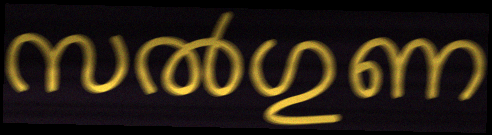
സൽഗുണ